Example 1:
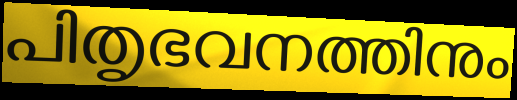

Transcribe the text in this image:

പിതൃഭവനത്തിനും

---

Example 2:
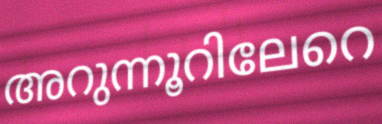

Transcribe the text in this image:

അറുന്നൂറിലേറെ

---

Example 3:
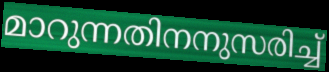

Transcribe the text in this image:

മാറുന്നതിനനുസരിച്ച്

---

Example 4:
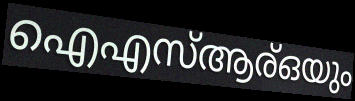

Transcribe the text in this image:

ഐഎസ്ആര്ഒയും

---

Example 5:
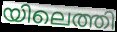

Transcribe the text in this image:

യിലെത്തി